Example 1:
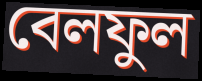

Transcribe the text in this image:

বেলফুল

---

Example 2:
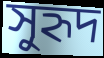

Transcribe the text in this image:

সুহৃদ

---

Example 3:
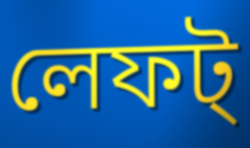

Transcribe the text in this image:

লেফট্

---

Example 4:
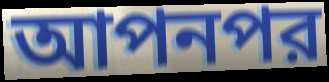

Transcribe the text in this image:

আপনপর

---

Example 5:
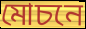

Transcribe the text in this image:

মোচনে